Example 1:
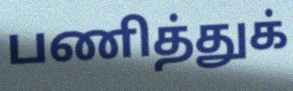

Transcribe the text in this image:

பணித்துக்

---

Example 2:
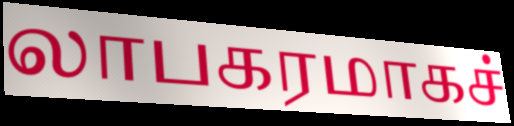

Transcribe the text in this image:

லாபகரமாகச்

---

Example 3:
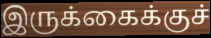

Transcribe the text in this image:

இருக்கைக்குச்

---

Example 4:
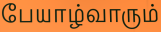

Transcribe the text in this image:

பேயாழ்வாரும்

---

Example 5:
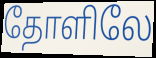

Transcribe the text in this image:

தோளிலே